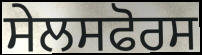
ਸੇਲਸਫੋਰਸ